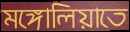
মঙ্গোলিয়াতে